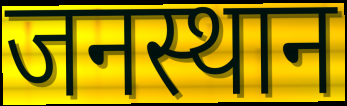
जनस्थान